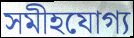
সমীহযোগ্য